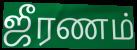
ஜீரணம்